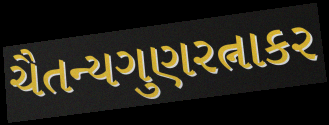
ચૈતન્યગુણરત્નાકર